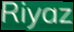
Riyaz